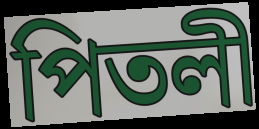
পিতলী